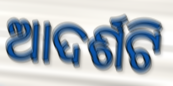
ଆଦର୍ଶଟି